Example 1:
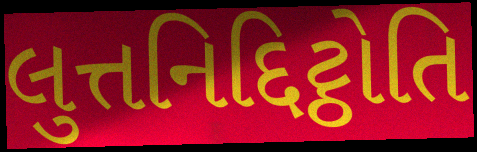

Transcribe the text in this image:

લુત્તનિદ્દિટ્ઠોતિ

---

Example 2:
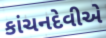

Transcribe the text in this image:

કાંચનદેવીએ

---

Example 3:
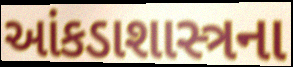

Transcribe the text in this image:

આંકડાશાસ્ત્રના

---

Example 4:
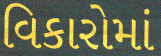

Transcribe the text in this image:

વિકારોમાં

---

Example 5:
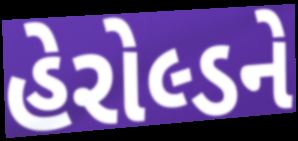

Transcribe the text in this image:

હેરોલ્ડને